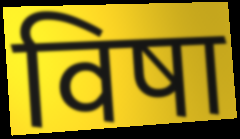
विषा